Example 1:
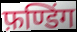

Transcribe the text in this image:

फ़ण्डिंग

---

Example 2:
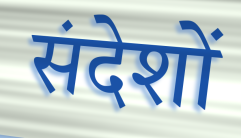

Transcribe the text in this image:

संदेशों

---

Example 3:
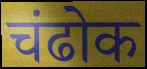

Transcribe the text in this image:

चंढोक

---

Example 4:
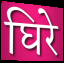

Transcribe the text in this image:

घिरे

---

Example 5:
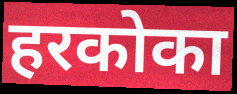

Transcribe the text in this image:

हरकोका